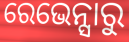
ରେଭେନ୍ସାରୁ